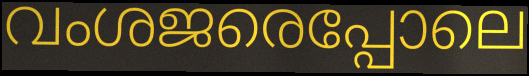
വംശജരെപ്പോലെ